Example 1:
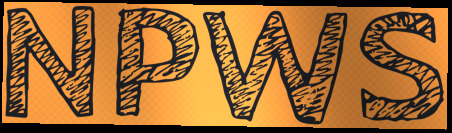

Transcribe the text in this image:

NPWS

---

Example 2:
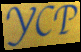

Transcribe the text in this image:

YCP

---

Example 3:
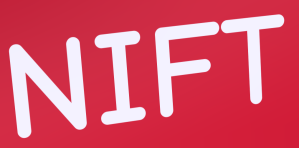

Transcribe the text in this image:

NIFT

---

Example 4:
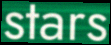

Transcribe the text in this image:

stars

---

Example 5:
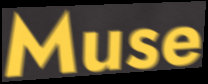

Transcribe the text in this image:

Muse